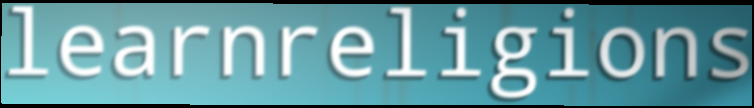
learnreligions